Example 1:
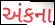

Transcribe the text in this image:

અંકના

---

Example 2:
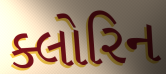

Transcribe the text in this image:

ક્લોરિન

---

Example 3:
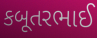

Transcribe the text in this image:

કબૂતરભાઈ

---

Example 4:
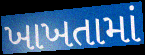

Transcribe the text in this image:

ખાખતામાં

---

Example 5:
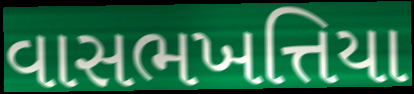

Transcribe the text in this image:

વાસભખત્તિયા